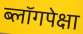
ब्लॉगपेक्षा